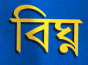
বিঘ্ন